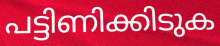
പട്ടിണിക്കിടുക